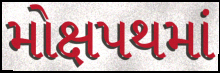
મોક્ષપથમાં